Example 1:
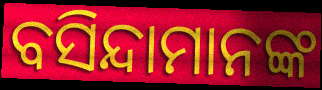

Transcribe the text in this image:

ବସିନ୍ଦାମାନଙ୍କ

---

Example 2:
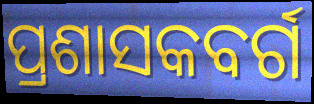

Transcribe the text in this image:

ପ୍ରଶାସକବର୍ଗ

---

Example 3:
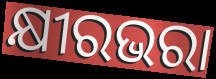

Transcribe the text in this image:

କ୍ଷୀରଭରା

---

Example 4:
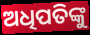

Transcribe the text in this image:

ଅଧିପତିଙ୍କୁ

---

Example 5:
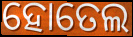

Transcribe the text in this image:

ହୋତେଲ